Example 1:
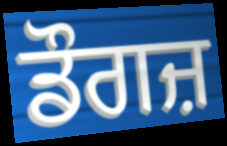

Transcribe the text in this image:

ਡੌਗਜ਼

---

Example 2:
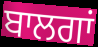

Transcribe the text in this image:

ਬਾਲਗਾਂ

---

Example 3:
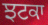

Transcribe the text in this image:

ਝਟਕਾ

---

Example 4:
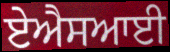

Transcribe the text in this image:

ਏਐਸਆਈ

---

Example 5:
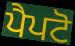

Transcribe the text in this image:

ਪੈਪਟੋ